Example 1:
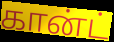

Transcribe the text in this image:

கான்ட்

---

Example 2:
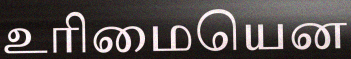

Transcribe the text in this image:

உரிமையென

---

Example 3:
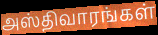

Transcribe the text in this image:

அஸ்திவாரங்கள்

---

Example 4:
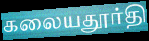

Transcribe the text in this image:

கலையதூர்தி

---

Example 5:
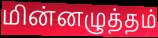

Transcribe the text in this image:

மின்னழுத்தம்